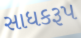
સાધકરૂપ